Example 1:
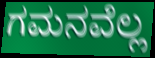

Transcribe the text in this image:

ಗಮನವೆಲ್ಲ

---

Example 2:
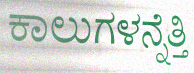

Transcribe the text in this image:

ಕಾಲುಗಳನ್ನೆತ್ತಿ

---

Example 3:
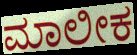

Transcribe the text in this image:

ಮಾಲೀಕ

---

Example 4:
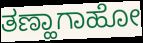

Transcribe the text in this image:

ತಣ್ಹಾಗಾಹೋ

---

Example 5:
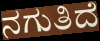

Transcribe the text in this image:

ನಗುತಿದೆ